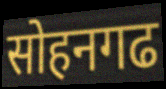
सोहनगढ